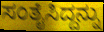
ಸಂತೈಸಿದ್ದನ್ನು